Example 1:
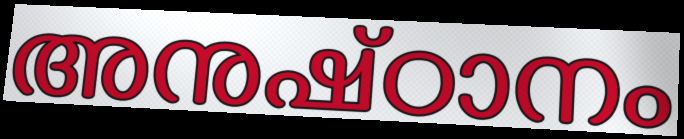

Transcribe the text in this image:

അനുഷ്‌ഠാനം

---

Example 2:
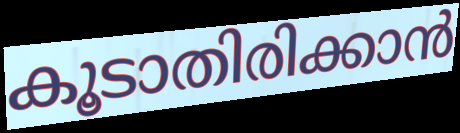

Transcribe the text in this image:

കൂടാതിരിക്കാൻ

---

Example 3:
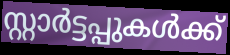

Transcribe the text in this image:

സ്റ്റാർട്ടപ്പുകൾക്ക്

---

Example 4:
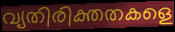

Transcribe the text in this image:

വ്യതിരിക്തതകളെ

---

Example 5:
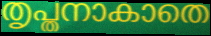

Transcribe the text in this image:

തൃപ്തനാകാതെ